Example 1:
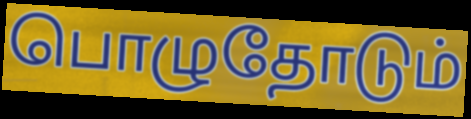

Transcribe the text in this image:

பொழுதோடும்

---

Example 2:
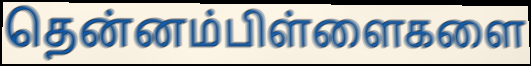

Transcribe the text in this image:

தென்னம்பிள்ளைகளை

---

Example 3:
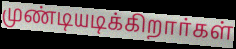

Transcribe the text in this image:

முண்டியடிக்கிறார்கள்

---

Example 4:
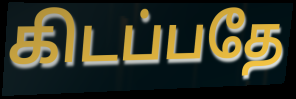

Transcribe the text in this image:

கிடப்பதே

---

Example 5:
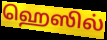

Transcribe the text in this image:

ஹெஸில்